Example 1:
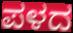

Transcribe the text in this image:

ಪಳದ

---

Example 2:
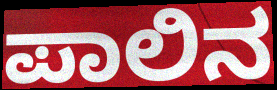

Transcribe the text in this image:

ಪಾಲಿನ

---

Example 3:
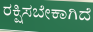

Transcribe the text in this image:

ರಕ್ಷಿಸಬೇಕಾಗಿದೆ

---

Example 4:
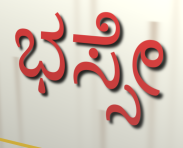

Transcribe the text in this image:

ಭಸ್ಸೇ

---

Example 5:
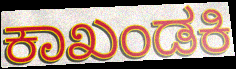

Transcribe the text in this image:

ಕಾಖಂಡಕಿ